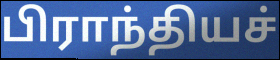
பிராந்தியச்